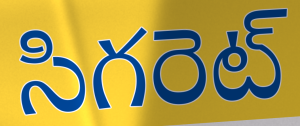
సిగరెట్